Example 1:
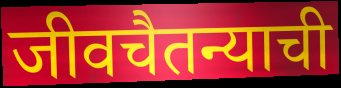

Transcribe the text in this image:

जीवचैतन्याची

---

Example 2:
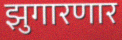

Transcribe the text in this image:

झुगारणार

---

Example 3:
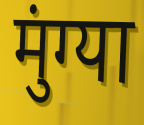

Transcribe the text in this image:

मुंग्या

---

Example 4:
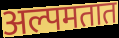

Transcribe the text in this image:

अल्पमतात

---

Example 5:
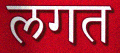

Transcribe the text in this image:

लगत